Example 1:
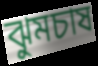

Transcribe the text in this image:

ঝুমচাষ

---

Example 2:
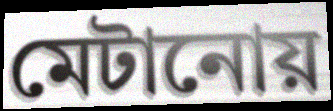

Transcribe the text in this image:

মেটানোয়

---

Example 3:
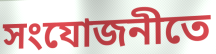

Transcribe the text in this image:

সংযোজনীতে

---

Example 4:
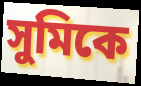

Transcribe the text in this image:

সুমিকে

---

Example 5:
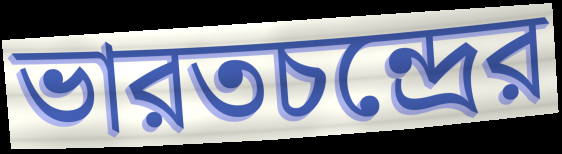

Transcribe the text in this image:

ভারতচন্দ্রের